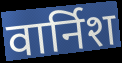
वार्निश